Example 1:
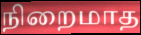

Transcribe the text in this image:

நிறைமாத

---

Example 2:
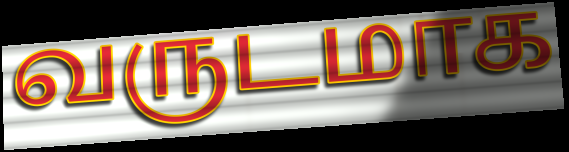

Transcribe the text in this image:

வருடமாக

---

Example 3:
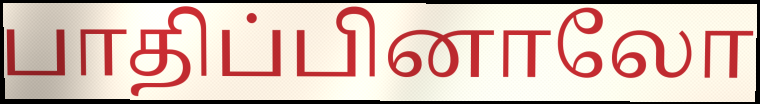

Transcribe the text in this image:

பாதிப்பினாலோ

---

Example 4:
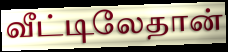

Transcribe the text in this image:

வீட்டிலேதான்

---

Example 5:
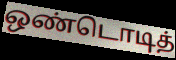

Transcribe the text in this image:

ஒண்டொடித்